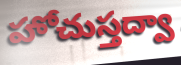
హోచుస్తద్వా